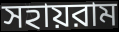
সহায়রাম